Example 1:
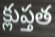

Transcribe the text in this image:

క్లుప్తత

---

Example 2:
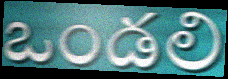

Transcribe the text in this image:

ఒండలి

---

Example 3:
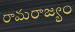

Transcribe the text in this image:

రామరాజ్యం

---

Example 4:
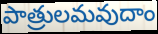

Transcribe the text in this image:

పాత్రులమవుదాం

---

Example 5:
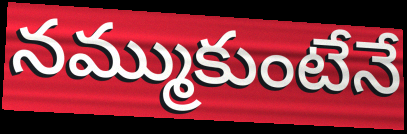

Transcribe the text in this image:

నమ్ముకుంటేనే